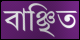
বাঞ্ছিত